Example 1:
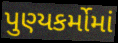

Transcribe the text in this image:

પુણ્યકર્મોમાં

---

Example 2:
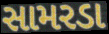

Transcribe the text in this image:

સામરડા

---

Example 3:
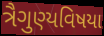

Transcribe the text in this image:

ત્રૈગુણ્યવિષયા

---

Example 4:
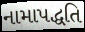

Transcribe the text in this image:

નામાપદ્ધતિ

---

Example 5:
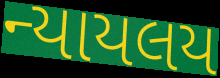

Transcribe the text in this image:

ન્યાયલય